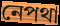
নেপথা